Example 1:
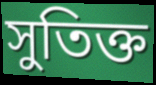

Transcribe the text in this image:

সুতিক্ত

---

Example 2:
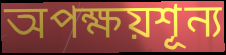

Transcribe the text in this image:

অপক্ষয়শূন্য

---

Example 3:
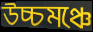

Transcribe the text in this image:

উচ্চমঞ্চে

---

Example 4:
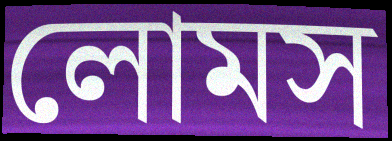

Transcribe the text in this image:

লোমস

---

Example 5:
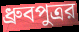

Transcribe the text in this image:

ধ্রুবপুত্রর